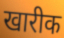
खारीक